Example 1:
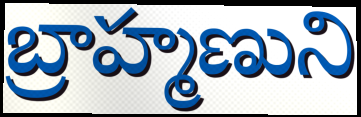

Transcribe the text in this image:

బ్రాహ్మణుని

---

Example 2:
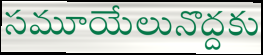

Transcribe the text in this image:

సమూయేలునొద్దకు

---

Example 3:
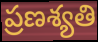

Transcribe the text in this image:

ప్రణశ్యతి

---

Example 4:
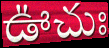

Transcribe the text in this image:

ఊచుః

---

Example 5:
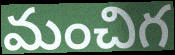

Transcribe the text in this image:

మంచిగ